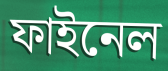
ফাইনেল